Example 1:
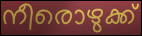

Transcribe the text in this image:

നീരൊഴുക്ക്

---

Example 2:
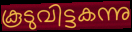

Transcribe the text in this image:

കൂടുവിട്ടകന്നു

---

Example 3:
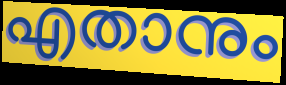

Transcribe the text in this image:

എതാനും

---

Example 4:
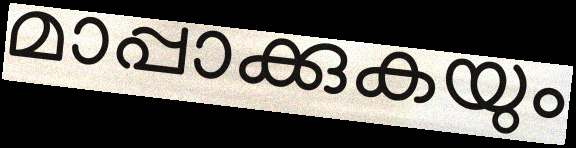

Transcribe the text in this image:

മാപ്പാക്കുകയും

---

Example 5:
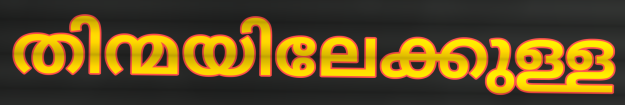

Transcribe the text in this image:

തിന്മയിലേക്കുള്ള